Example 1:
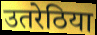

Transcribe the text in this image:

उतरेठिया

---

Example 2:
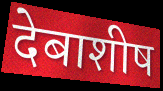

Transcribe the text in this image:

देबाशीष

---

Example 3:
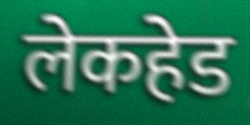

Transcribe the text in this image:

लेकहेड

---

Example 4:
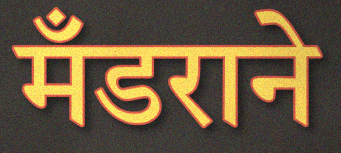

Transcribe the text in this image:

मँडराने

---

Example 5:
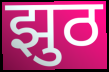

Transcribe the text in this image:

झुठ